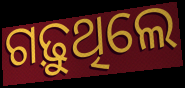
ଗଢ଼ୁଥିଲେ